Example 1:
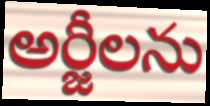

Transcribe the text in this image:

అర్జీలను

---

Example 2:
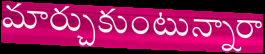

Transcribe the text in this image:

మార్చుకుంటున్నారా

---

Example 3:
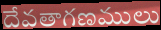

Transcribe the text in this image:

దేవతాగణములు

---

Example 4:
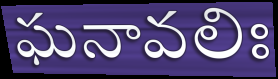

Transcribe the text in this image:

ఘనావలిః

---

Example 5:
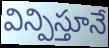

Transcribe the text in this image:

విన్పిస్తూనే